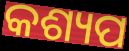
କଶ୍ୟପ